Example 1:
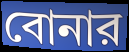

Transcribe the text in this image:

বোনার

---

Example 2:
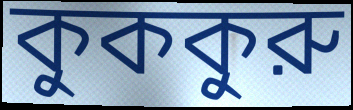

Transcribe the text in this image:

কুককুরু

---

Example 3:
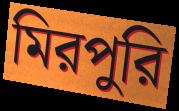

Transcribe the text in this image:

মিরপুরি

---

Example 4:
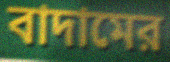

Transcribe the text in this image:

বাদামের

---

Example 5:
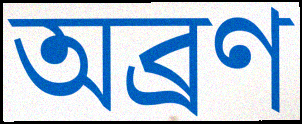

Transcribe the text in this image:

অব্রণ